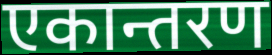
एकान्तरण